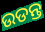
ଉଡନ୍ତ